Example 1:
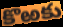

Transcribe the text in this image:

కొఱకు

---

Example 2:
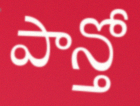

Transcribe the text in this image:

పాన్తో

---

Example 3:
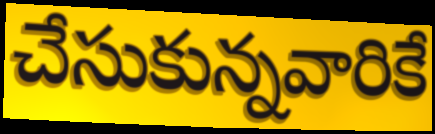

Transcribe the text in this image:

చేసుకున్నవారికే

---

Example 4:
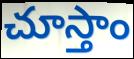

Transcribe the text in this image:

చూస్తాం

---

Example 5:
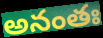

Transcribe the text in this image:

అనంతః